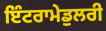
ਇੰਟਰਾਮੇਡੁਲਰੀ